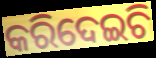
କରିଦେଇଚି